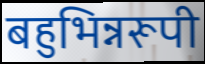
बहुभिन्नरूपी